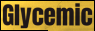
Glycemic